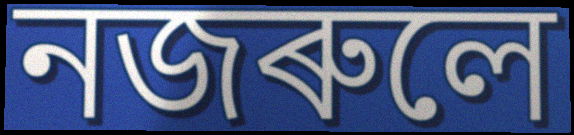
নজৰুলে